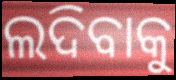
ଲଦିବାକୁ